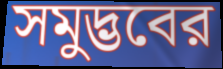
সমুদ্ভবের